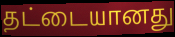
தட்டையானது